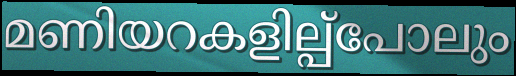
മണിയറകളില്പ്പോലും